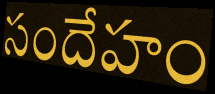
సందేహం